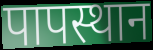
पापस्थान